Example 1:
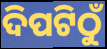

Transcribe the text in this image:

ଦିପଟିଠୁଁ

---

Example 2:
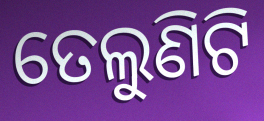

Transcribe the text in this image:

ତେଲୁଣିଟି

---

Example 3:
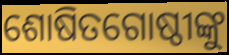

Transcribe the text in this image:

ଶୋଷିତଗୋଷ୍ଠୀଙ୍କୁ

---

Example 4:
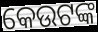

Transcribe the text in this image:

କେଉଟଙ୍କ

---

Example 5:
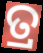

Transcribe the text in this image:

ତ୍ର